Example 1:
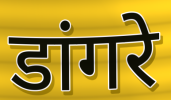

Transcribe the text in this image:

डांगरे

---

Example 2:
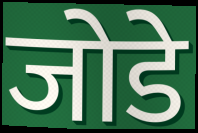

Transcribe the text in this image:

जोडे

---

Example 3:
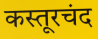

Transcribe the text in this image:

कस्तूरचंद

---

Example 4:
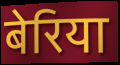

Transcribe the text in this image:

बेरिया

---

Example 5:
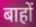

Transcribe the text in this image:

बाहों